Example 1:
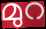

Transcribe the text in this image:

മുറ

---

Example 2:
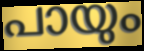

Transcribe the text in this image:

പായും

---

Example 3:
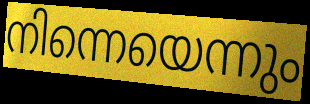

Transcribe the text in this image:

നിന്നെയെന്നും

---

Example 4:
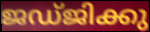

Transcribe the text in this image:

ജഡ്ജിക്കു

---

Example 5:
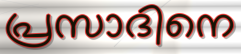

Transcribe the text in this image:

പ്രസാദിനെ